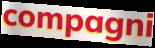
compagni